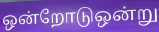
ஒன்றோடுஒன்று